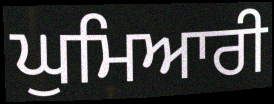
ਘੁਮਿਆਰੀ